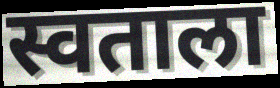
स्वताला